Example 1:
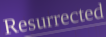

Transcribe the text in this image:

Resurrected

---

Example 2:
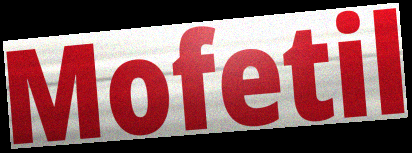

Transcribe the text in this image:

Mofetil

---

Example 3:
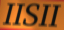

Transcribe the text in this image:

IISII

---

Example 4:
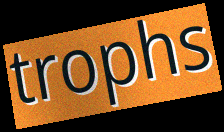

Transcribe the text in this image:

trophs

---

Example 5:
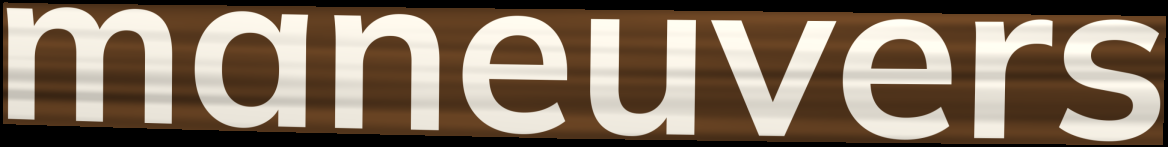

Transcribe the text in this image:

maneuvers